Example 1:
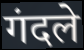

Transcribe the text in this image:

गंदले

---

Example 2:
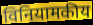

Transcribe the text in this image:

विनियामकीय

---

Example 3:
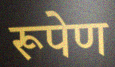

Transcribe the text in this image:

रूपेण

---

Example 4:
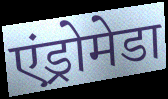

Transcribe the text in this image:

एंड्रोमेडा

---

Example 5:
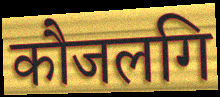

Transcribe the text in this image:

कौजलगि